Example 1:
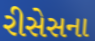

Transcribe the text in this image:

રીસેસના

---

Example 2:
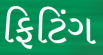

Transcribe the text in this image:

ફિટિંગ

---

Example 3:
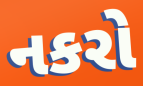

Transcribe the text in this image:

નકરો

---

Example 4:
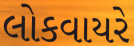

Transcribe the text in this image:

લોકવાયરે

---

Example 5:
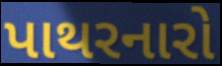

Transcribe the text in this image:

પાથરનારો